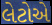
લેટોએ